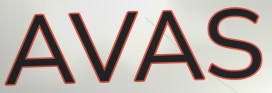
AVAS